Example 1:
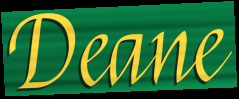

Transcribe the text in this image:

Deane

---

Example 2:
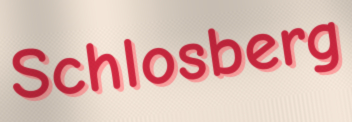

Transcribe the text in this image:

Schlosberg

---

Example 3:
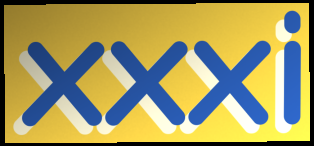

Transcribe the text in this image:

xxxi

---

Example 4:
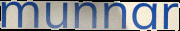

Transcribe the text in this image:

munnar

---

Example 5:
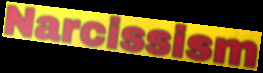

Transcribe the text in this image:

Narcissism